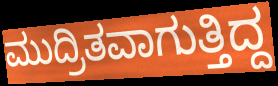
ಮುದ್ರಿತವಾಗುತ್ತಿದ್ದ